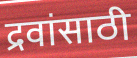
द्रवांसाठी